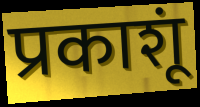
प्रकाशूं